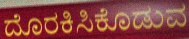
ದೊರಕಿಸಿಕೊಡುವ